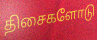
திசைகளோடு